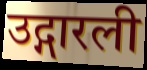
उद्गारली